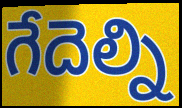
గేదెల్ని